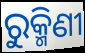
ରୁକ୍ମିଣୀ